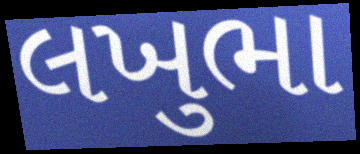
લખુભા